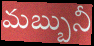
మబ్బునీ